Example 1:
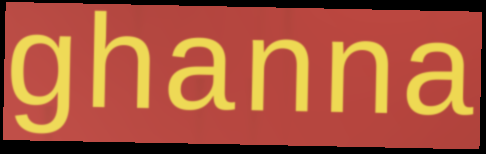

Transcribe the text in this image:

ghanna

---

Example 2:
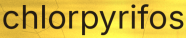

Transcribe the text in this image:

chlorpyrifos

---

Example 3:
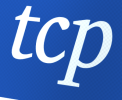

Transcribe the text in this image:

tcp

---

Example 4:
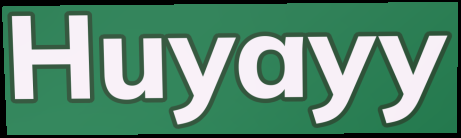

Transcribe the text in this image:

Huyayy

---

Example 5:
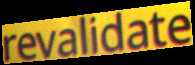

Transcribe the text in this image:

revalidate